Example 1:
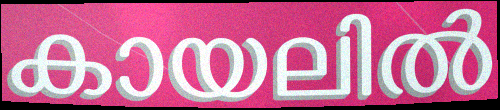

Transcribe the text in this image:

കായലിൽ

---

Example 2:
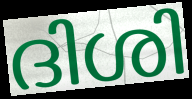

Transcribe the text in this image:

ദിശി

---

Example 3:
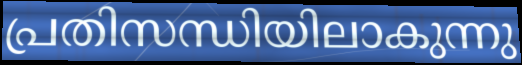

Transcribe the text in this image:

പ്രതിസന്ധിയിലാകുന്നു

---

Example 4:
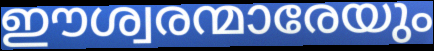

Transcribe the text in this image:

ഈശ്വരന്മാരേയും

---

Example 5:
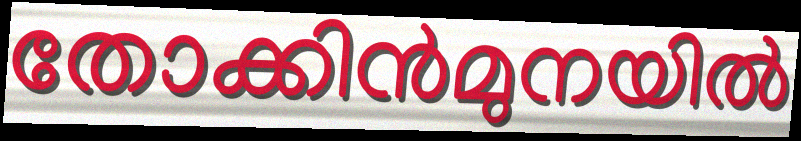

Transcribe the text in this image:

തോക്കിൻമുനയിൽ